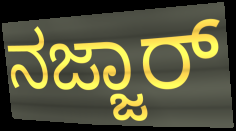
ನಜ್ಜಾರ್